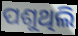
ପଶୁଥିଲି